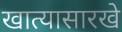
खात्यासारखे